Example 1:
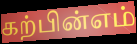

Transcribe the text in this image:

கற்பின்எம்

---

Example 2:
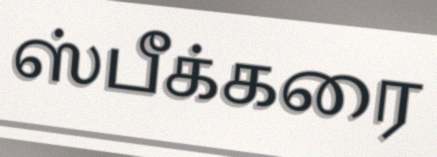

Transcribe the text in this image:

ஸ்பீக்கரை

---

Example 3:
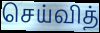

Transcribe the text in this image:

செய்வித்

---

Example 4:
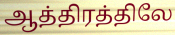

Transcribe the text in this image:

ஆத்திரத்திலே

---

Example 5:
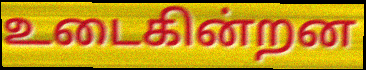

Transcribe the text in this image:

உடைகின்றன